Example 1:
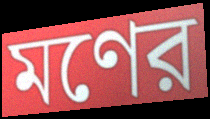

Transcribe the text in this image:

মণের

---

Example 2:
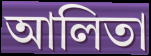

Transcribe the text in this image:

আলিতা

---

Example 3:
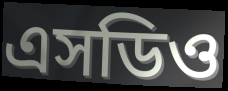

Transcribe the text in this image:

এসডিও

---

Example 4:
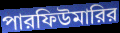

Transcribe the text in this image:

পারফিউমারির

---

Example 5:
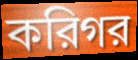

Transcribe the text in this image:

করিগর